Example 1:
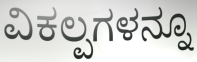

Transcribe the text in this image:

ವಿಕಲ್ಪಗಳನ್ನೂ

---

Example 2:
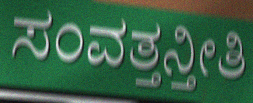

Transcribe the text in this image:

ಸಂವತ್ತನ್ತೀತಿ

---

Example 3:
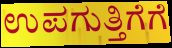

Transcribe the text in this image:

ಉಪಗುತ್ತಿಗೆಗೆ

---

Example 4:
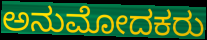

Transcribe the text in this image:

ಅನುಮೋದಕರು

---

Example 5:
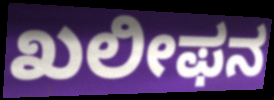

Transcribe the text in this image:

ಖಲೀಫನ